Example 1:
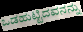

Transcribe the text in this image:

ಒಡಹುಟ್ಟಿದವನನ್ನು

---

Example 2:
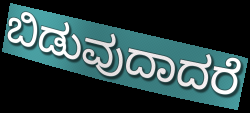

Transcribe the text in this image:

ಬಿಡುವುದಾದರೆ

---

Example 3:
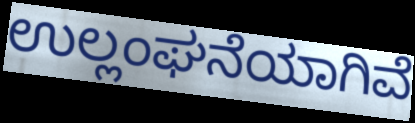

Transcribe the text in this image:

ಉಲ್ಲಂಘನೆಯಾಗಿವೆ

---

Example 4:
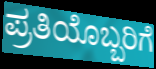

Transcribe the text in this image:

ಪ್ರತಿಯೊಬ್ಬರಿಗೆ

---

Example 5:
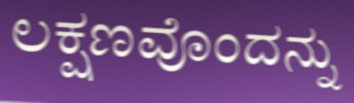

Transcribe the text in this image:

ಲಕ್ಷಣವೊಂದನ್ನು